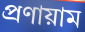
প্রণায়াম